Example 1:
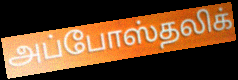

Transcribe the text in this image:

அப்போஸ்தலிக்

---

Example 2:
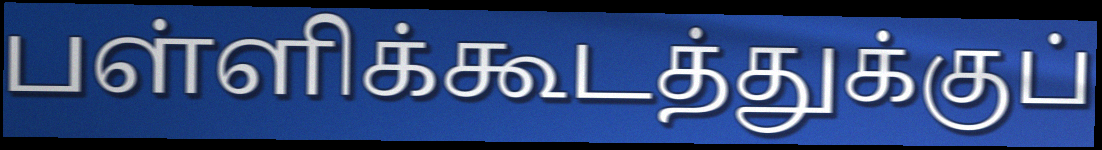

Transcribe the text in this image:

பள்ளிக்கூடத்துக்குப்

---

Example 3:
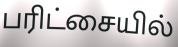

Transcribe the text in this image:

பரிட்சையில்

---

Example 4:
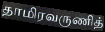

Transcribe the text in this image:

தாமிரவருணித்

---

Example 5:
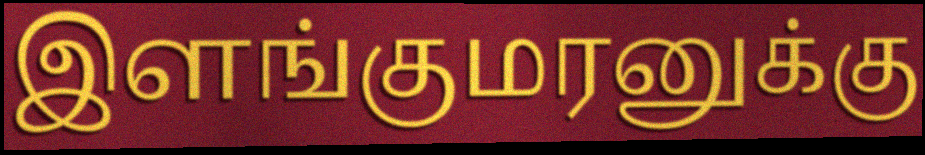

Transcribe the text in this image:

இளங்குமரனுக்கு